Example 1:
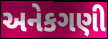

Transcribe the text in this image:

અનેકગણી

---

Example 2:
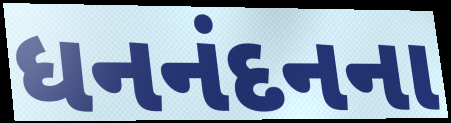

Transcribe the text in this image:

ધનનંદનના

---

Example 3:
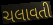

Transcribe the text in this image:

ચલાવતી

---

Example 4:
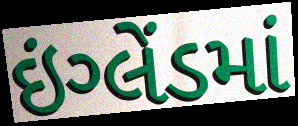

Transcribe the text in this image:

ઇંગ્લેંડમાં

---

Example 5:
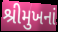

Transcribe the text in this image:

શ્રીમુખનાં